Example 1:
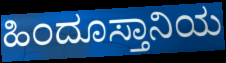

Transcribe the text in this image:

ಹಿಂದೂಸ್ತಾನಿಯ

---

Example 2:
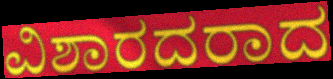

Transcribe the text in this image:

ವಿಶಾರದರಾದ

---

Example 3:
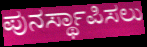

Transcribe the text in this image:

ಪುನರ್ಸ್ಥಾಪಿಸಲು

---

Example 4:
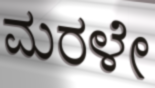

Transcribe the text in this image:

ಮರಳೇ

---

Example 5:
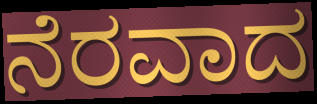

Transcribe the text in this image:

ನೆರವಾದ